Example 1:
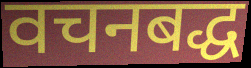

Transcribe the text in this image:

वचनबद्ध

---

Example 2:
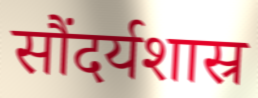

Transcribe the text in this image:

सौंदर्यशास्र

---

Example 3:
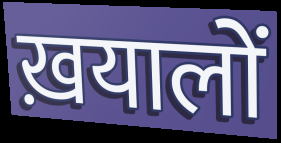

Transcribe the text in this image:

ख़यालों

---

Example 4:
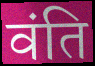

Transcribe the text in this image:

वंति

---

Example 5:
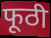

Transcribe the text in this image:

फूठी